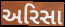
અરિસા